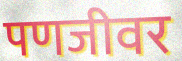
पणजीवर